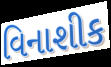
વિનાશીક